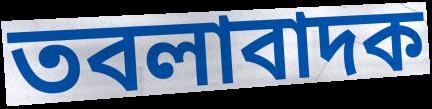
তবলাবাদক